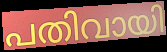
പതിവായി